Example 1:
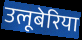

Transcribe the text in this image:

उलूबेरिया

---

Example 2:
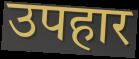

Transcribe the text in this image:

उपहार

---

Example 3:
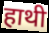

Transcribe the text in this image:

हाथी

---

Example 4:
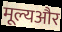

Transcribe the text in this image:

मूल्यऔर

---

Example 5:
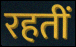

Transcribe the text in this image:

रहतीं